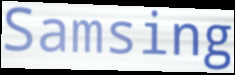
Samsing